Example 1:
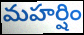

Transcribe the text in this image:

మహర్షిం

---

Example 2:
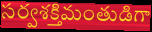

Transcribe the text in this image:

సర్వశక్తిమంతుడిగా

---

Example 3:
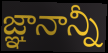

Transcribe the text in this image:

జ్ఞానాన్నీ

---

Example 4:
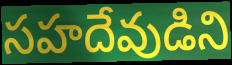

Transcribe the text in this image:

సహదేవుడిని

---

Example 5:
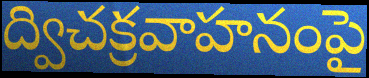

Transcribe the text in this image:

ద్విచక్రవాహనంపై